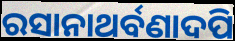
ରସାନାଥର୍ବଣାଦପି